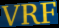
VRF